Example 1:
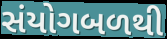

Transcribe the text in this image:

સંયોગબળથી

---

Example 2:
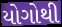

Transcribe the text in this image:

યોગોથી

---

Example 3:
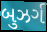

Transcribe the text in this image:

બુઝર્ગ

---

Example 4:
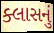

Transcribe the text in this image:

ક્લાસનું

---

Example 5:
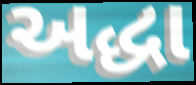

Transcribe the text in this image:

અદ્ધા